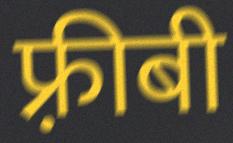
फ़्रीबी